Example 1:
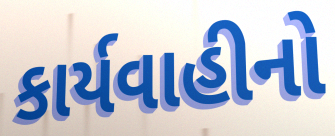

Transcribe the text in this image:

કાર્યવાહીનો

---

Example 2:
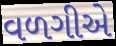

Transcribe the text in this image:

વળગીએ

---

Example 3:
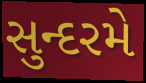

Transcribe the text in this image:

સુન્દરમે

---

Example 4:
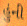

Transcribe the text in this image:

હુંની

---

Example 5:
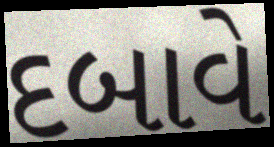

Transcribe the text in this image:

દબાવે